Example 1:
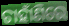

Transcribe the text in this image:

ଚାହାଁଣିରେ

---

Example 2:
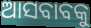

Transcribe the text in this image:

ଆସବାବକୁ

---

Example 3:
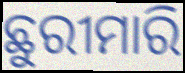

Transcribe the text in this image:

ଛୁରୀମାରି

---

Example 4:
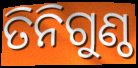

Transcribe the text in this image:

ତିନିଗୁଣ୍ଠ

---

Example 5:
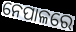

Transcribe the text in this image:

ନେପାଳରେ